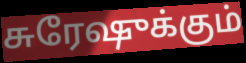
சுரேஷுக்கும்